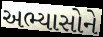
અભ્યાસોને